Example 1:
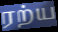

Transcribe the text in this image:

ரற்ய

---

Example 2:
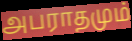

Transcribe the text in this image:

அபராதமும்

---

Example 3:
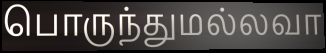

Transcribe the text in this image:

பொருந்துமல்லவா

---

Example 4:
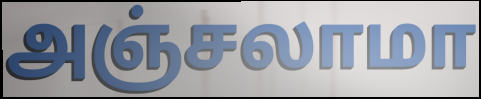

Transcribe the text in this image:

அஞ்சலாமா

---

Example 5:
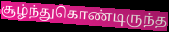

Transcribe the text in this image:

சூழ்ந்துகொண்டிருந்த